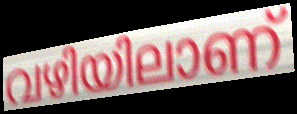
വഴിയിലാണ്